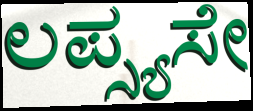
ಲಪ್ಸ್ಯಸೇ